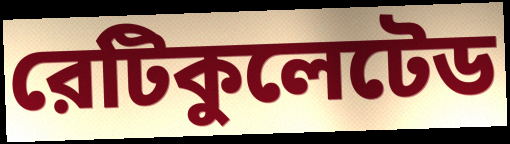
রেটিকুলেটেড